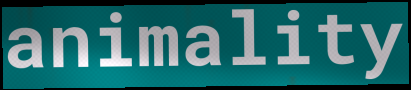
animality